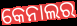
କେନାଲର